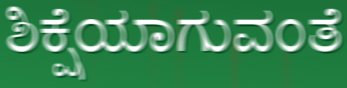
ಶಿಕ್ಷೆಯಾಗುವಂತೆ